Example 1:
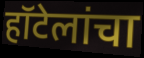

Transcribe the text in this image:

हॉटेलांचा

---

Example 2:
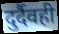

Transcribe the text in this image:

दुर्दैवही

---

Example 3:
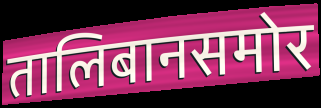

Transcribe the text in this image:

तालिबानसमोर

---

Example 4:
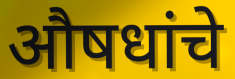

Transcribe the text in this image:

औषधांचे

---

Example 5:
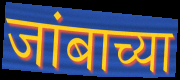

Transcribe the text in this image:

जांबाच्या